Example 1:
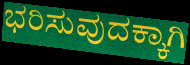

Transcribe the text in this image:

ಭರಿಸುವುದಕ್ಕಾಗಿ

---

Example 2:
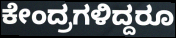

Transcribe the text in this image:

ಕೇಂದ್ರಗಳಿದ್ದರೂ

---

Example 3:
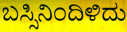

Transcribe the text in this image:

ಬಸ್ಸಿನಿಂದಿಳಿದು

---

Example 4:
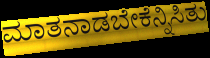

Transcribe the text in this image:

ಮಾತನಾಡಬೇಕೆನ್ನಿಸಿತು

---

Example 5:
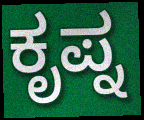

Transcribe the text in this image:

ಕೃಪ್ನ